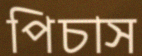
পিচাস